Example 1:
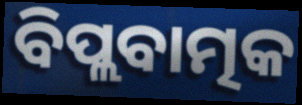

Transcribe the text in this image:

ବିପ୍ଲବାତ୍ମକ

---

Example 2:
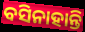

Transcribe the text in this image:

ବସିନାହାନ୍ତି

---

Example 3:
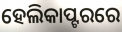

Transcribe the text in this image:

ହେଲିକାପ୍ଟରରେ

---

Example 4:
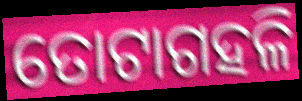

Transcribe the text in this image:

ତୋଟାଗହଳି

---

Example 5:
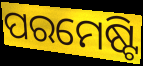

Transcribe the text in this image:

ପରମେଷ୍ଟି